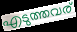
എടുത്തവര്